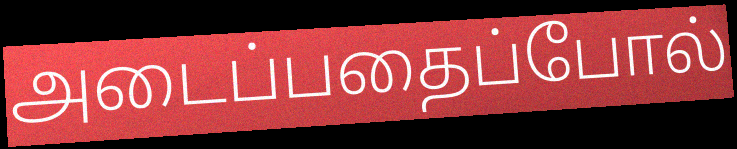
அடைப்பதைப்போல்